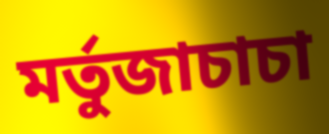
মর্তুজাচাচা